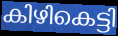
കിഴികെട്ടി